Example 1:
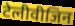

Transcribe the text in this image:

टेलीवीजिन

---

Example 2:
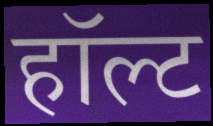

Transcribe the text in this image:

हॉल्ट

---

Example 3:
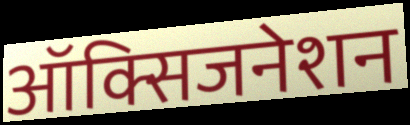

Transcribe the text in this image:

ऑक्सिजनेशन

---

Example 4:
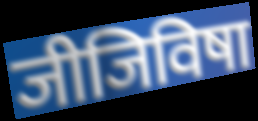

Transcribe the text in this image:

जीजिविषा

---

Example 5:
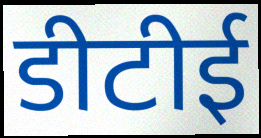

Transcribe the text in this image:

डीटीई